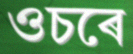
ওচৰে